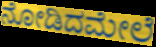
ನೋಡಿದಮೇಲೆ